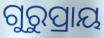
ଗୁରୁପ୍ରାୟ